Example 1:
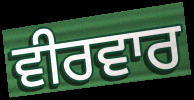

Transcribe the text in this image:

ਵੀਰਵਾਰ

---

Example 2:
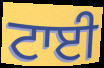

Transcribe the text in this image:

ਟਾਈ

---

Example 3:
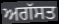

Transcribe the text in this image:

ਅਗੱਸਤ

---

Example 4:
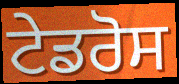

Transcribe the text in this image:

ਟੇਡਰੋਸ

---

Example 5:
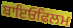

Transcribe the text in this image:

ਬਾਇਓਫਿਲਮ